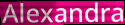
Alexandra